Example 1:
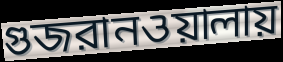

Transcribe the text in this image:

গুজরানওয়ালায়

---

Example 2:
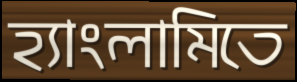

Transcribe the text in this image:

হ্যাংলামিতে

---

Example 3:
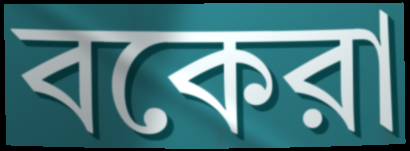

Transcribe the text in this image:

বকেরা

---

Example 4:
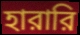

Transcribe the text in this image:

হারারি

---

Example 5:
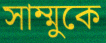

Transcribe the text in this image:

সাম্মুকে